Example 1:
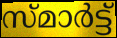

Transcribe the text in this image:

സ്മാർട്ട്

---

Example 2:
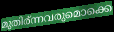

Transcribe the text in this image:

മുതിര്ന്നവരുമൊക്കെ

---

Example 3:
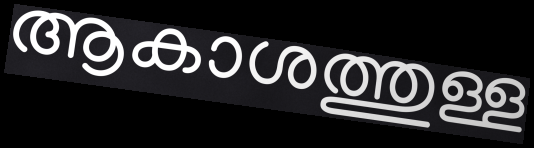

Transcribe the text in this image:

ആകാശത്തുള്ള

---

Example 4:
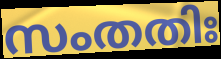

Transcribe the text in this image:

സംതതിഃ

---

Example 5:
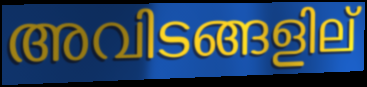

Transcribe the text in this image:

അവിടങ്ങളില്